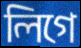
লিগে